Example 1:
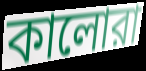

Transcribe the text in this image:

কালোরা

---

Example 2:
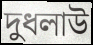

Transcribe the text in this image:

দুধলাউ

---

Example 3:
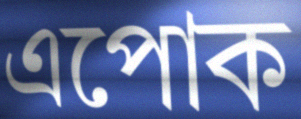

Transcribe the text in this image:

এপোক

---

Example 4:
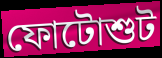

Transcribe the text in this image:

ফোটোশুট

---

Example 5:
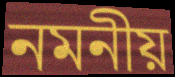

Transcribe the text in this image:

নমনীয়